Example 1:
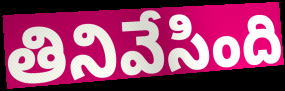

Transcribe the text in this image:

తినివేసింది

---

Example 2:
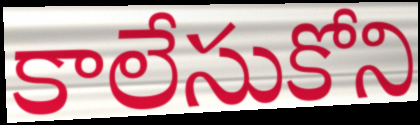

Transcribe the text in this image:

కాలేసుకోని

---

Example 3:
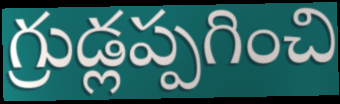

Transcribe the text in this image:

గ్రుడ్లప్పగించి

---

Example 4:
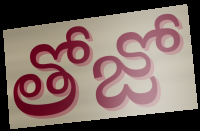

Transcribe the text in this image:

తోజో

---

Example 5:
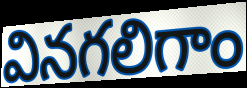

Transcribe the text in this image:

వినగలిగాం